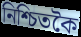
নিশ্চিতকৈ